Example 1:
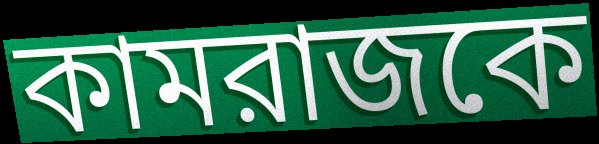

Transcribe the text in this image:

কামরাজকে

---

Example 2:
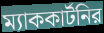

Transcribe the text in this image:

ম্যাককার্টনির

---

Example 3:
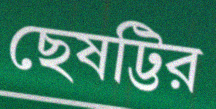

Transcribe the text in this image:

ছেষট্টির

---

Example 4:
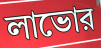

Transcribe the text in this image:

লাভোর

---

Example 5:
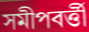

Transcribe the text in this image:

সমীপবর্ত্তী